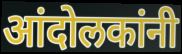
आंदोलकांनी